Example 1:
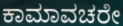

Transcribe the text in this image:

ಕಾಮಾವಚರೇ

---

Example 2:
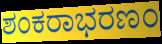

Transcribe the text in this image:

ಶಂಕರಾಭರಣಂ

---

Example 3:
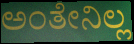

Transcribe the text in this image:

ಅಂತೇನಿಲ್ಲ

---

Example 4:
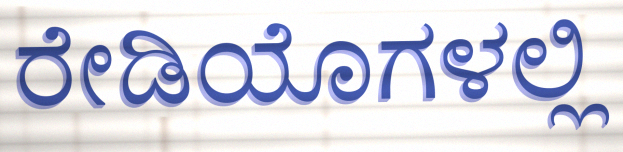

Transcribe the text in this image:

ರೇಡಿಯೊಗಳಲ್ಲಿ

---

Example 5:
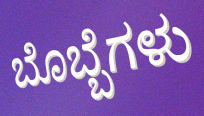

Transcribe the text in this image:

ಬೊಬ್ಬೆಗಳು